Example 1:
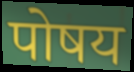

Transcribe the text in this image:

पोषय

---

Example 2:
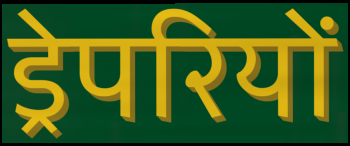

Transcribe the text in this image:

ड्रेपरियों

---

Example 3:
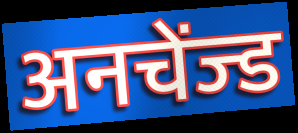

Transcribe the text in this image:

अनचेंज्ड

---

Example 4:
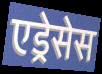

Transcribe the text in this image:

एड्रेसेस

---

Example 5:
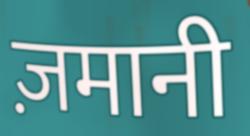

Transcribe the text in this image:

ज़मानी